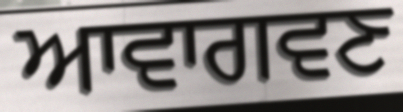
ਆਵਾਗਵਣ